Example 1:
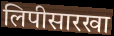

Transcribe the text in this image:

लिपीसारखा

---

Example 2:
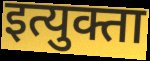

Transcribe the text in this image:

इत्युक्ता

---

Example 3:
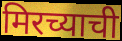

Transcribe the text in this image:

मिरच्याची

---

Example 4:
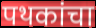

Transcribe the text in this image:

पथकांचा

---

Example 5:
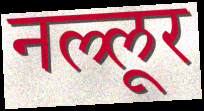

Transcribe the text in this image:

नल्लूर